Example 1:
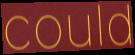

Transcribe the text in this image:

could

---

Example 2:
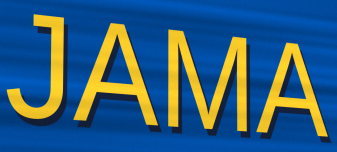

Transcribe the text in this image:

JAMA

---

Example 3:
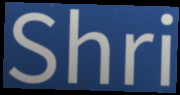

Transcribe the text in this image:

Shri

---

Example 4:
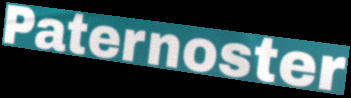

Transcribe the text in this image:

Paternoster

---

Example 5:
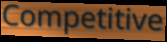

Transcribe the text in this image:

Competitive